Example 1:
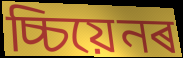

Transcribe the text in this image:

চ্চিয়েনৰ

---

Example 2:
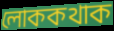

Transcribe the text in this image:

লোককথাক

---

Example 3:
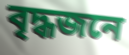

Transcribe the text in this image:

বৃদ্ধজনে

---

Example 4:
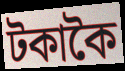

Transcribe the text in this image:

টকাকৈ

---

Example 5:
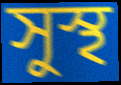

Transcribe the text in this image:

সুস্থ